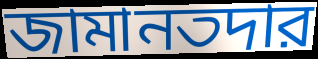
জামানতদার